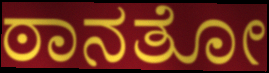
ಠಾನತೋ